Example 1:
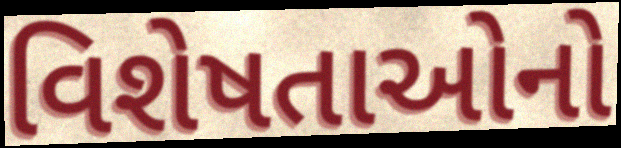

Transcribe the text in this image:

વિશેષતાઓનો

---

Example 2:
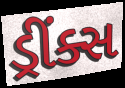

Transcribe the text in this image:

ડ્રીંક્સ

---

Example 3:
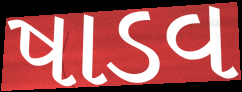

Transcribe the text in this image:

ષાડવ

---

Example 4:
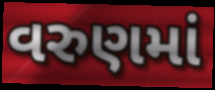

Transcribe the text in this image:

વરુણમાં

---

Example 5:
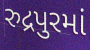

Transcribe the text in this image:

રુદ્રપુરમાં